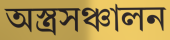
অস্ত্রসঞ্চালন